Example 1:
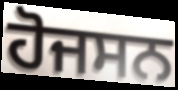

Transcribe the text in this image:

ਹੋਜਸਨ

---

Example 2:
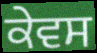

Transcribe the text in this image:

ਕੇਵਸ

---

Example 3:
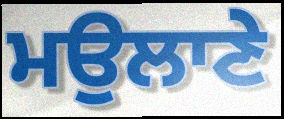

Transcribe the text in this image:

ਮਉਲਾਣੇ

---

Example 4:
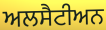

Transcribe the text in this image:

ਅਲਸੈਟੀਅਨ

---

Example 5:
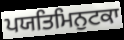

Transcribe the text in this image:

ਪਯਤਿਮਿਨੁਟਕਾ